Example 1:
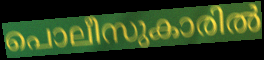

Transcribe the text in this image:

പൊലീസുകാരിൽ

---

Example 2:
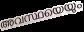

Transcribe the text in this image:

അവസ്ഥയെയും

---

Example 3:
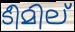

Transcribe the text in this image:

ടീമില്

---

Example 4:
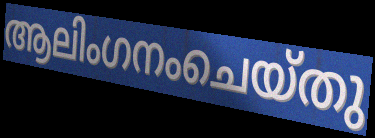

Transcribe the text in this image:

ആലിംഗനംചെയ്തു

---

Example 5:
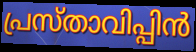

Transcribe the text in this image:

പ്രസ്താവിപ്പിൻ